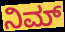
ನಿಮ್